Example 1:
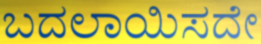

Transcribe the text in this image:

ಬದಲಾಯಿಸದೇ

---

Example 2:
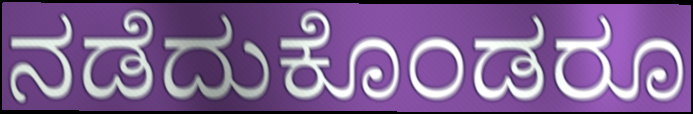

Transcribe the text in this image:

ನಡೆದುಕೊಂಡರೂ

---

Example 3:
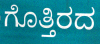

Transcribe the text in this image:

ಗೊತ್ತಿರದ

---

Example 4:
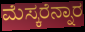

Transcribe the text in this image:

ಮೆಸ್ಕರೆನ್ನಾರ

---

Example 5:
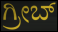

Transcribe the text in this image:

ಗ್ರೀಬ್